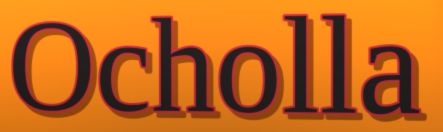
Ocholla